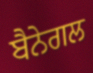
ਬੈਨੇਗਲ